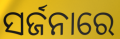
ସର୍ଜନାରେ